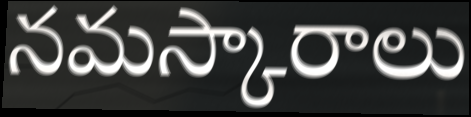
నమస్కారాలు